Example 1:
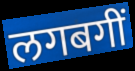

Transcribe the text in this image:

लगबगीं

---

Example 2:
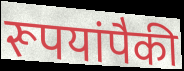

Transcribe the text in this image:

रूपयांपैकी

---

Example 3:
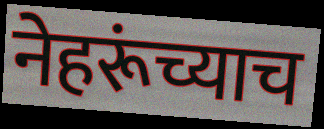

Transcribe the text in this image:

नेहरूंच्याच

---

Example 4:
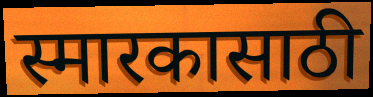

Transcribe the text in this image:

स्मारकासाठी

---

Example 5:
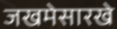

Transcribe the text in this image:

जखमेसारखे